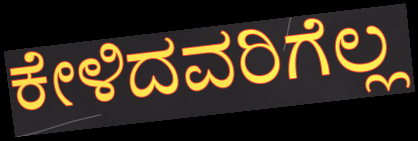
ಕೇಳಿದವರಿಗೆಲ್ಲ